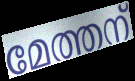
മേത്തന്